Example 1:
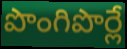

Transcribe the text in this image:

పొంగిపొర్లే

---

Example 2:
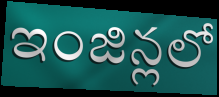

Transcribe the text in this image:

ఇంజిన్లలో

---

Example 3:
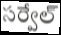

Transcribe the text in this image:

సర్వేల్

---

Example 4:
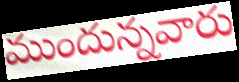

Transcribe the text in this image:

ముందున్నవారు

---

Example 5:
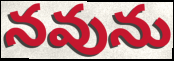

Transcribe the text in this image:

నవును